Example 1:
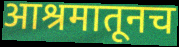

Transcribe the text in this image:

आश्रमातूनच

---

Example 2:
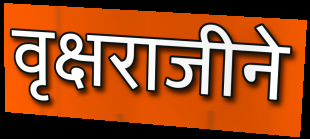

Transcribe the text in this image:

वृक्षराजीने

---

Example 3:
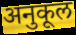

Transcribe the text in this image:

अनुकूल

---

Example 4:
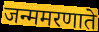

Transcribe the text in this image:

जन्ममरणाते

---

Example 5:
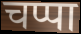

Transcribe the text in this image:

चप्पा